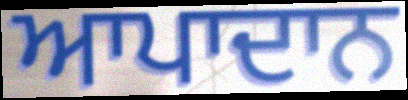
ਆਪਾਦਾਨ